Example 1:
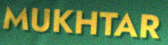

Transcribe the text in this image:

MUKHTAR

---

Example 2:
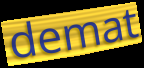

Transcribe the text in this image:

demat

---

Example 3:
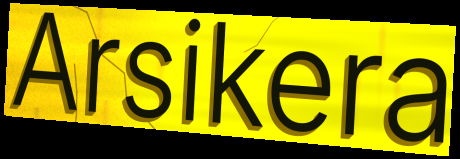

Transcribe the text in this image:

Arsikera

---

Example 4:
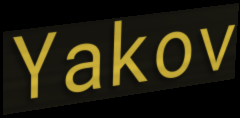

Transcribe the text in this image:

Yakov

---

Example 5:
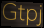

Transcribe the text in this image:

Gtpj